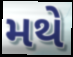
મથે